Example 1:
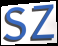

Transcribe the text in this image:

SZ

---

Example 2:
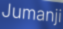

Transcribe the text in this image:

Jumanji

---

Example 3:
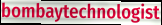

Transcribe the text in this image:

bombaytechnologist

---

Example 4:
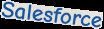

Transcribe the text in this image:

Salesforce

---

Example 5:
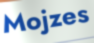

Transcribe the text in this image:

Mojzes